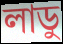
লাডু